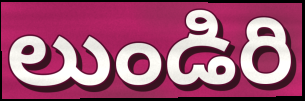
లుండిరి